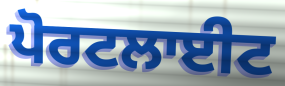
ਪੋਰਟਲਾਈਟ